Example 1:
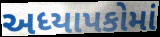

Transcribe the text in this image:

અધ્યાપકોમાં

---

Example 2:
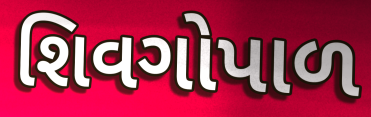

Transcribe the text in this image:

શિવગોપાળ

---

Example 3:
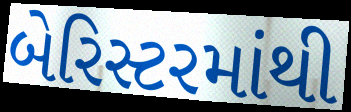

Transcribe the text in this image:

બેરિસ્ટરમાંથી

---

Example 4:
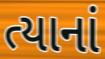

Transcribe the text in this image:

ત્યાનાં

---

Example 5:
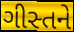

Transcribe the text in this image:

ગીસ્તને